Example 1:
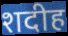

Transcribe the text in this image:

शदीह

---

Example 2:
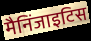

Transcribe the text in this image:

मैनिंजाइटिस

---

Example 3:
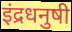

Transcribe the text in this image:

इंद्रधनुषी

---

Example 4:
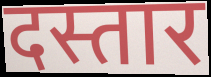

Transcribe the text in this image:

दस्तार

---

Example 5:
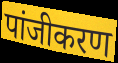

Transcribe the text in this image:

पांजीकरण